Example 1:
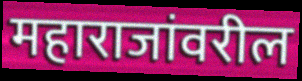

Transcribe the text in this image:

महाराजांवरील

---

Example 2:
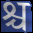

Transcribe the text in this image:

श्च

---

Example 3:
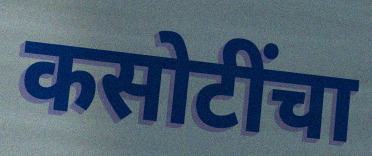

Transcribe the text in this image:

कसोटींचा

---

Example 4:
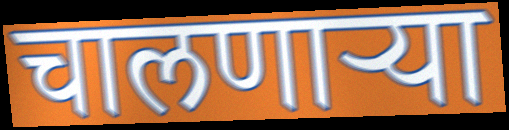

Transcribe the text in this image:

चालणाऱ्या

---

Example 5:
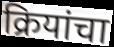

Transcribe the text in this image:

क्रियांचा